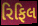
રિફિલ